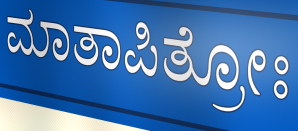
ಮಾತಾಪಿತ್ರೋಃ